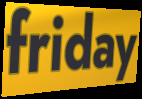
friday